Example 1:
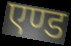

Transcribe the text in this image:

एण्ड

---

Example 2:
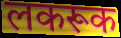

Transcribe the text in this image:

लकरूक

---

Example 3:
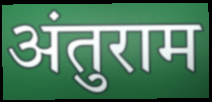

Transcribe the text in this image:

अंतुराम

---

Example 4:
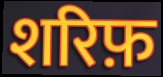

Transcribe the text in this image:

शरिफ़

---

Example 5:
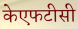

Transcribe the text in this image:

केएफटीसी